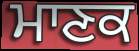
ਮਾਣਕ